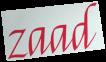
zaad